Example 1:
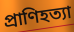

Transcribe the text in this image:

প্রাণিহত্যা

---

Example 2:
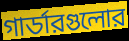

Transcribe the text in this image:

গার্ডারগুলোর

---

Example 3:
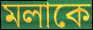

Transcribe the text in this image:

মলাকে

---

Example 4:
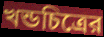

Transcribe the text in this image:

খন্ডচিত্রের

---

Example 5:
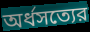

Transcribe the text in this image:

অর্ধসত্যের